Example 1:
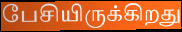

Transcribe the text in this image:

பேசியிருக்கிறது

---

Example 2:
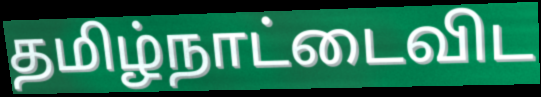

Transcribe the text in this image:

தமிழ்நாட்டைவிட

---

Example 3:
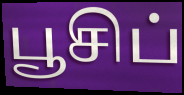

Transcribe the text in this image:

பூசிப்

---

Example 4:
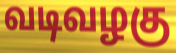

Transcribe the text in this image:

வடிவழகு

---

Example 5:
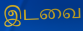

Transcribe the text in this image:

இடவை